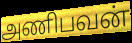
அணிபவன்